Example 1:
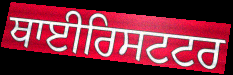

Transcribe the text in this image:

ਥਾਈਰਿਸਟਟਰ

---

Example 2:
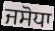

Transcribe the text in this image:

ਜਸੋਧਾ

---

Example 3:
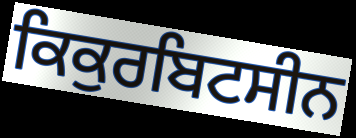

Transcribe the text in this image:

ਕਿਕੁਰਬਿਟਸੀਨ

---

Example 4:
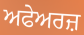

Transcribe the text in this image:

ਅਫੇਅਰਜ਼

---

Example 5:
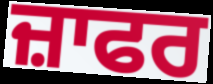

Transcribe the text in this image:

ਜ਼ਾਫਰ